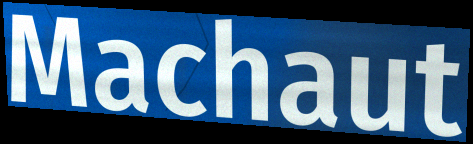
Machaut